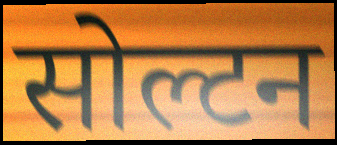
सोल्टन